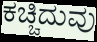
ಕಚ್ಚಿದುವು